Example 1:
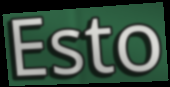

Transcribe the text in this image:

Esto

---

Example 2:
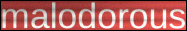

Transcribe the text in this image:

malodorous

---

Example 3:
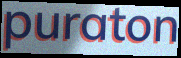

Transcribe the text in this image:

puraton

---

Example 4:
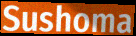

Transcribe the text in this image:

Sushoma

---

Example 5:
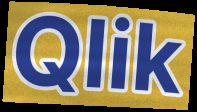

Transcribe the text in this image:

Qlik